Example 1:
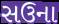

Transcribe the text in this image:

સઉના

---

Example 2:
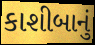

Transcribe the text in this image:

કાશીબાનું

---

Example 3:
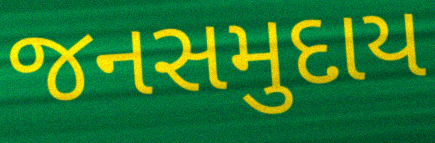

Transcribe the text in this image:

જનસમુદાય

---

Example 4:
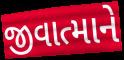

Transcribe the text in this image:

જીવાત્માને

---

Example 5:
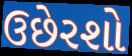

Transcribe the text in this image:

ઉછેરશો